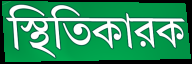
স্থিতিকারক